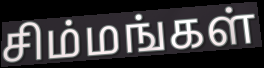
சிம்மங்கள்